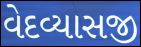
વેદવ્યાસજી